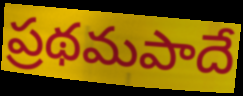
ప్రథమపాదే